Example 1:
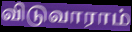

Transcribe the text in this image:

விடுவாராம்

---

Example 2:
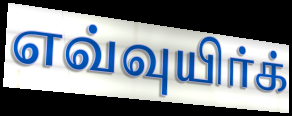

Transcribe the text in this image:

எவ்வுயிர்க்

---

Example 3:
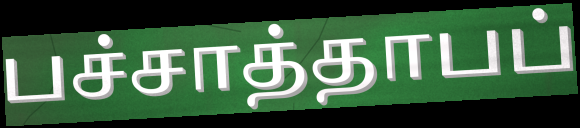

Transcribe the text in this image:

பச்சாத்தாபப்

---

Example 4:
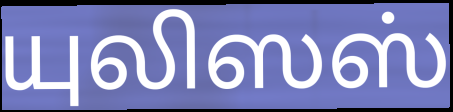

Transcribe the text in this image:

யுலிஸஸ்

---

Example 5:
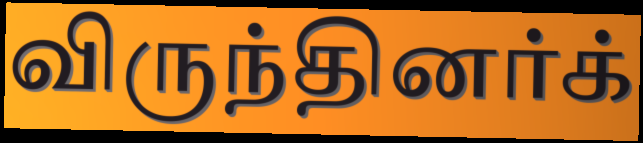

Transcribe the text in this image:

விருந்தினர்க்